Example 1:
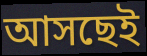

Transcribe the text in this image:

আসছেই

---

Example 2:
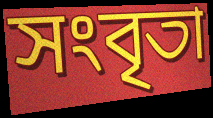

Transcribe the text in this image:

সংবৃতা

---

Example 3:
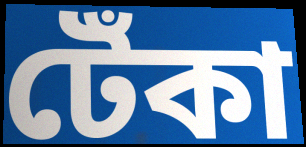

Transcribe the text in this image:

টেঁকা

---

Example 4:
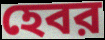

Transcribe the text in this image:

হেবর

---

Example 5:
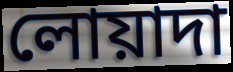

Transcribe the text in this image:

লোয়াদা